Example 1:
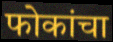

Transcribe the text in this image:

फोकांचा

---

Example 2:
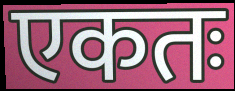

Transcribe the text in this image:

एकतः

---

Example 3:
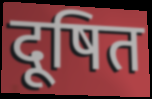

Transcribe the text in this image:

दूषित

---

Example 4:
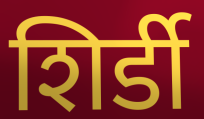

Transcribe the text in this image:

शिर्डी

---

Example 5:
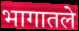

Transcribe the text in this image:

भागातले